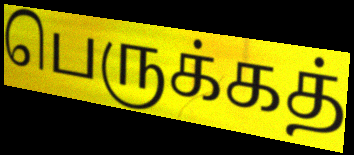
பெருக்கத்